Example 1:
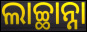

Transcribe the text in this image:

ଲାଚ୍ଛାନ୍ନା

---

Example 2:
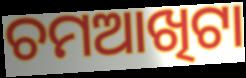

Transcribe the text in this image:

ଚମଆଖିଟା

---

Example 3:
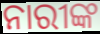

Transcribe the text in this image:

ନାରୀଙ୍କ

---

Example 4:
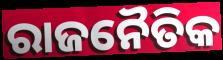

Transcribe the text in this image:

ରାଜନୈତିକ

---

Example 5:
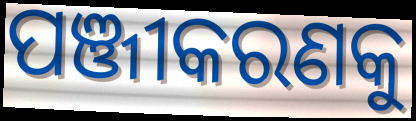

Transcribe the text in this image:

ପଞ୍ଜୀକରଣକୁ